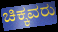
ಚಿಕ್ಕವರು